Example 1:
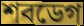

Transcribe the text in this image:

শবডেগ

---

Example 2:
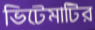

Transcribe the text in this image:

ভিটেমাটির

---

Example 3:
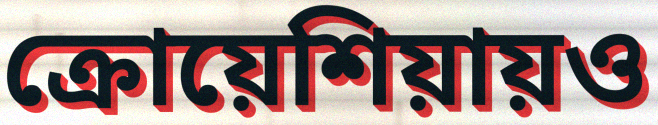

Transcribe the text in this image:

ক্রোয়েশিয়ায়ও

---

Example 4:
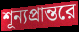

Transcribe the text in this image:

শূন্যপ্রান্তরে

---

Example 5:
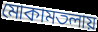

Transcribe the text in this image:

মোকামতলায়